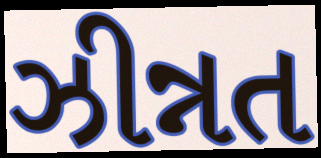
ઝીન્નત